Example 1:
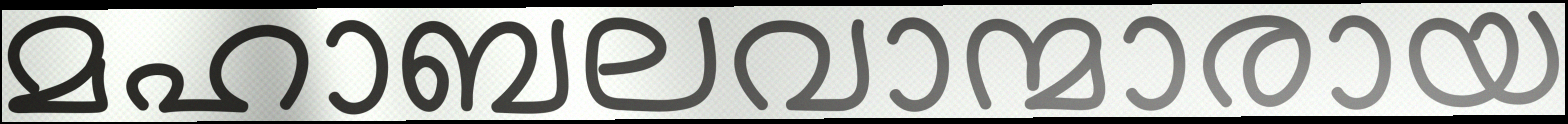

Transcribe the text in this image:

മഹാബലവാന്മാരായ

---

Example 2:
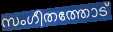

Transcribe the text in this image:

സംഗീതത്തോട്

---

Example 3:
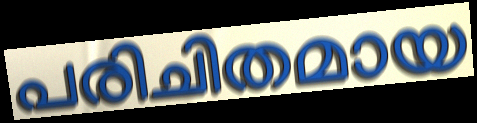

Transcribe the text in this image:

പരിചിതമായ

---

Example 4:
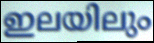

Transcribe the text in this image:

ഇലയിലും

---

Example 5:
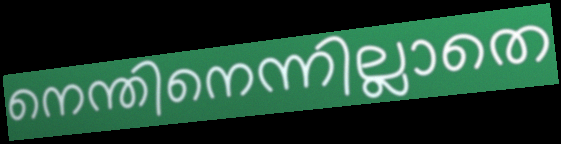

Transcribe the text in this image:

നെന്തിനെന്നില്ലാതെ